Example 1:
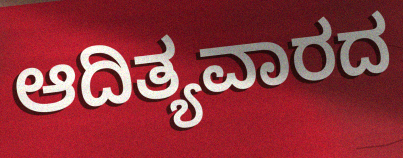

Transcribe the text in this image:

ಆದಿತ್ಯವಾರದ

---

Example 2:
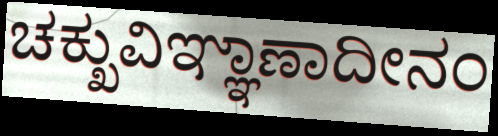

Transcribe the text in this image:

ಚಕ್ಖುವಿಞ್ಞಾಣಾದೀನಂ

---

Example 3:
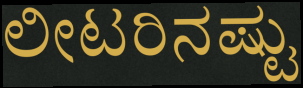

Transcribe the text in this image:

ಲೀಟರಿನಷ್ಟು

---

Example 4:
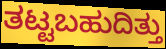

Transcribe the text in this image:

ತಟ್ಟಬಹುದಿತ್ತು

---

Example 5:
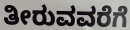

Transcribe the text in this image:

ತೀರುವವರೆಗೆ